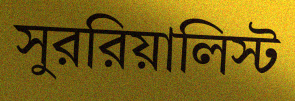
সুররিয়ালিস্ট